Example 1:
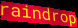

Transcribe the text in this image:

raindrop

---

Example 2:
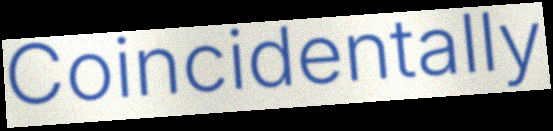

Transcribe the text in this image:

Coincidentally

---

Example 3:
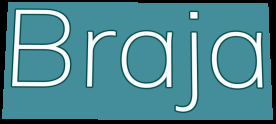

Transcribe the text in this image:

Braja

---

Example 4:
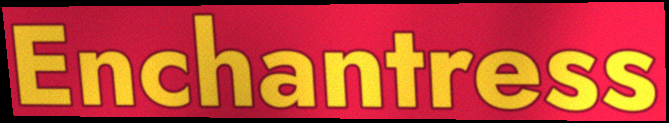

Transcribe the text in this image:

Enchantress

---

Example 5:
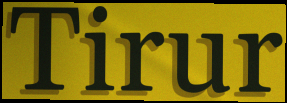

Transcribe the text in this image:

Tirur